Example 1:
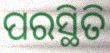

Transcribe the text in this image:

ପରସ୍ଥିତି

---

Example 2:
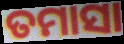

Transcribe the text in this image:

ତମାସା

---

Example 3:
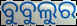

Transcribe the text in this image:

ବୁବୁଲୁର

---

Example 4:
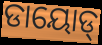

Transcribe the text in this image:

ଡାୟୋଡ୍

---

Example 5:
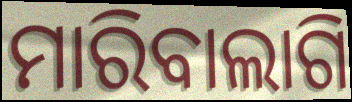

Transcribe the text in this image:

ମାରିବାଲାଗି